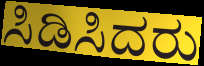
ಸಿಡಿಸಿದರು